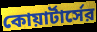
কোয়ার্টার্সের